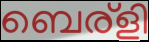
ബെര്ളി